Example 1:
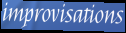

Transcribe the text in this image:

improvisations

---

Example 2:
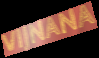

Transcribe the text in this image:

VIJNANA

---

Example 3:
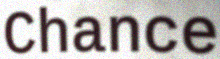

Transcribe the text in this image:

Chance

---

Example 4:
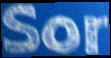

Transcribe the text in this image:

Sor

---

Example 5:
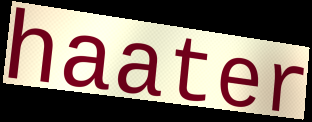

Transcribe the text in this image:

haater